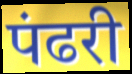
पंढरी